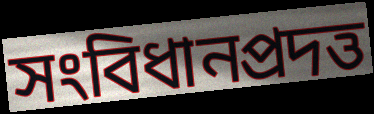
সংবিধানপ্রদত্ত